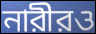
নারীরও